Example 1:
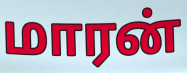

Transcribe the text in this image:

மாரன்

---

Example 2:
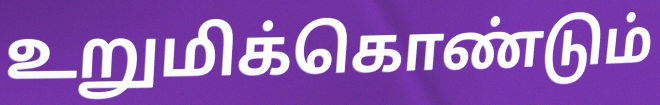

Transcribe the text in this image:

உறுமிக்கொண்டும்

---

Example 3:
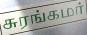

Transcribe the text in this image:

சுரங்கமர்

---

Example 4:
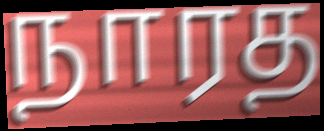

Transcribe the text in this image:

நாரத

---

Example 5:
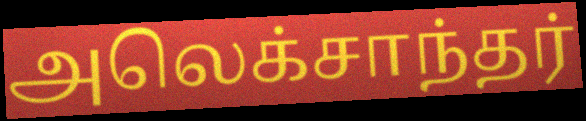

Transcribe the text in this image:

அலெக்சாந்தர்